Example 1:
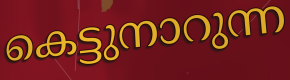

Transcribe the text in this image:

കെട്ടുനാറുന്ന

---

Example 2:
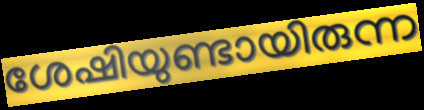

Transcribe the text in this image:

ശേഷിയുണ്ടായിരുന്ന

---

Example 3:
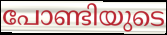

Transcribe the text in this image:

പോണ്ടിയുടെ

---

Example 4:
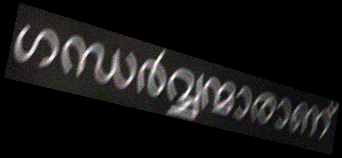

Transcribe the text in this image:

ഗന്ധർവ്വന്മാരാണ്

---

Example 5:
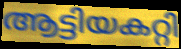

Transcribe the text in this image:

ആട്ടിയകറ്റി